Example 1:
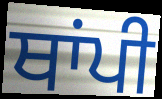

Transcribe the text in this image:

ਥਾਂਪੀ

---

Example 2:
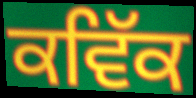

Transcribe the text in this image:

ਕਵਿੱਕ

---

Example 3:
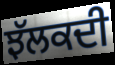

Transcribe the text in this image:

ਝੱਲਕਦੀ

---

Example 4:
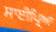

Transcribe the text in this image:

ਸਾਈਪ੍ਰਿਆ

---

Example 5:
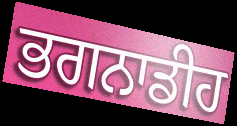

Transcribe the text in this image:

ਭਗਨਾਡੀਹ